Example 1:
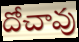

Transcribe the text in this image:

దోచావు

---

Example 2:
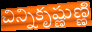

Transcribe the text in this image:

చిన్నికృష్ణుణ్ణి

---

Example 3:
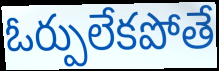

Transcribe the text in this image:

ఓర్పులేకపోతే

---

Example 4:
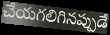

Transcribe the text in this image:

చేయగలిగినప్పుడే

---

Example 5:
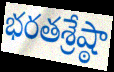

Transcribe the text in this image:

భరతశ్రేష్ఠా